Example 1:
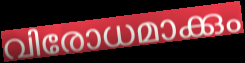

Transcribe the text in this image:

വിരോധമാക്കും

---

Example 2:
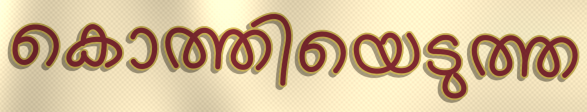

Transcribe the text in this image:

കൊത്തിയെടുത്ത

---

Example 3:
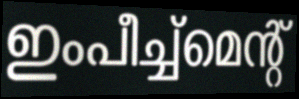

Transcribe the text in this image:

ഇംപീച്ച്മെന്റ്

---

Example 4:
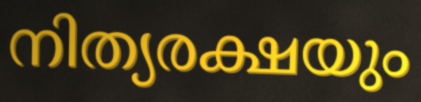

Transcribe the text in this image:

നിത്യരക്ഷയും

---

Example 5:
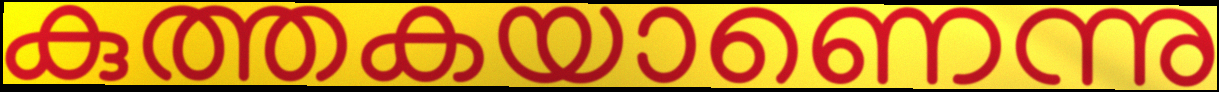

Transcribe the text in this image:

കുത്തകയാണെന്നു